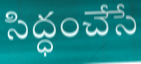
సిద్ధంచేసే